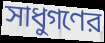
সাধুগণের